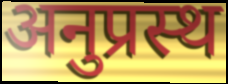
अनुप्रस्थ